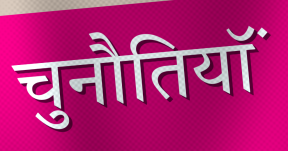
चुनौतियॉं